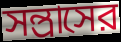
সন্ত্রাসের